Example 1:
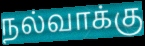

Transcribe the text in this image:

நல்வாக்கு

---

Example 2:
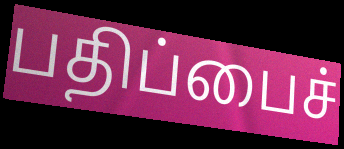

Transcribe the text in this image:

பதிப்பைச்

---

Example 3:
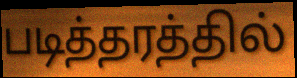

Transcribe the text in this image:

படித்தரத்தில்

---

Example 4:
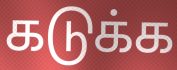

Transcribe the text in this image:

கடுக்க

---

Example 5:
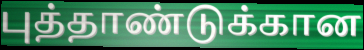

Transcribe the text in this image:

புத்தாண்டுக்கான